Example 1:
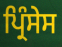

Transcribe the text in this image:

ਪ੍ਰਿੰਸੇਸ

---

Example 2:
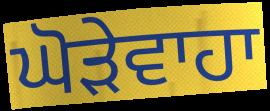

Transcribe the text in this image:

ਘੋੜੇਵਾਹਾ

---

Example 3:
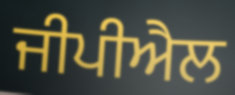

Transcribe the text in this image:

ਜੀਪੀਐਲ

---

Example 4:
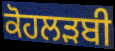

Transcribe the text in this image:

ਕੋਹਲੜਬੀ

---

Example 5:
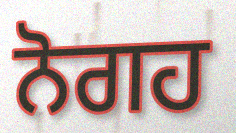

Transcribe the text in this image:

ਨੋਗਹ